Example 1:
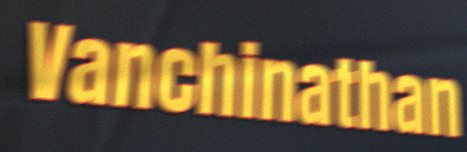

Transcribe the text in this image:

Vanchinathan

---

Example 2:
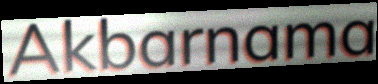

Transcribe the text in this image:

Akbarnama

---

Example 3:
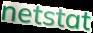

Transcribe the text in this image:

netstat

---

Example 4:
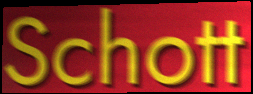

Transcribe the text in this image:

Schott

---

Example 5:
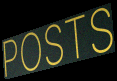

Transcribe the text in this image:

POSTS